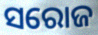
ସରୋଜ